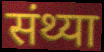
संथ्या